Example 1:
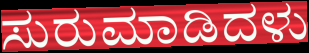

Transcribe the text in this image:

ಸುರುಮಾಡಿದಳು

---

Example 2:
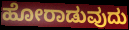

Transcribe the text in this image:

ಹೋರಾಡುವುದು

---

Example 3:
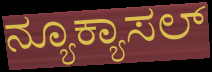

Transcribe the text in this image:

ನ್ಯೂಕ್ಯಾಸಲ್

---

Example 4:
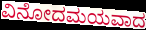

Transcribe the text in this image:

ವಿನೋದಮಯವಾದ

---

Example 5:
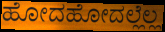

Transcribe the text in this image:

ಹೋದಹೋದಲ್ಲೆಲ್ಲ